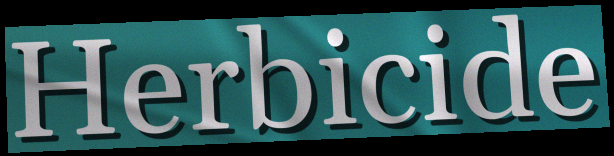
Herbicide